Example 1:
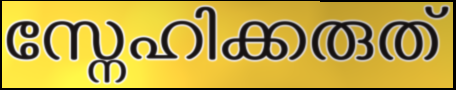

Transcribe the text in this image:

സ്നേഹിക്കരുത്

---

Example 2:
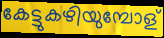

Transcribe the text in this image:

കേട്ടുകഴിയുമ്പോള്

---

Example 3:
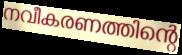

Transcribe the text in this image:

നവീകരണത്തിന്റെ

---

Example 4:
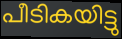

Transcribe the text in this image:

പീടികയിട്ടു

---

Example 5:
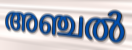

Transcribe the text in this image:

അഞ്ചൽ